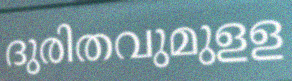
ദുരിതവുമുളള